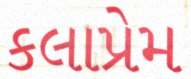
કલાપ્રેમ